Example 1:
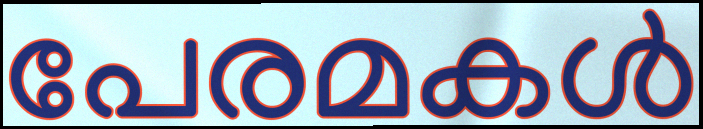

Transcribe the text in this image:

പേരമകൾ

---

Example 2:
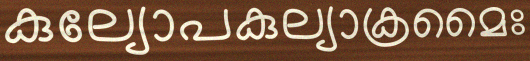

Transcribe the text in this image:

കുല്യോപകുല്യാക്രമൈഃ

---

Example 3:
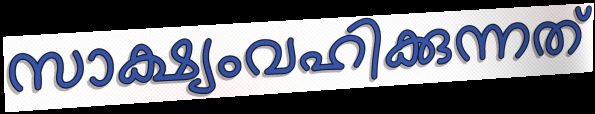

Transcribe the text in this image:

സാക്ഷ്യംവഹിക്കുന്നത്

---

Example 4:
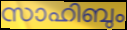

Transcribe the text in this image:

സാഹിബും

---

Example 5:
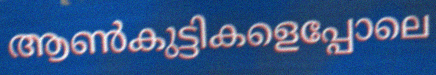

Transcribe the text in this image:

ആൺകുട്ടികളെപ്പോലെ